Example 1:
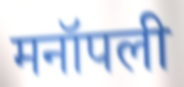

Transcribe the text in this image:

मनॉपली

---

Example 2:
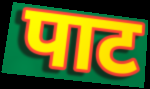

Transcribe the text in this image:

पाट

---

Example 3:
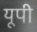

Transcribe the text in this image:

यूपी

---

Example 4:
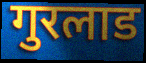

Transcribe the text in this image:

गुरलाड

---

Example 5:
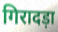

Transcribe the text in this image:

गिरादड़ा